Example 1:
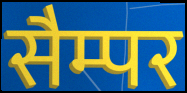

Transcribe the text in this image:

सैम्पर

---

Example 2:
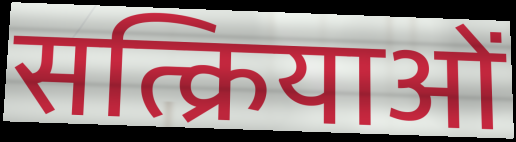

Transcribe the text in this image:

सत्क्रियाओं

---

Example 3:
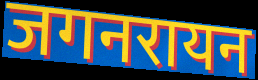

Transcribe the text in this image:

जगनरायन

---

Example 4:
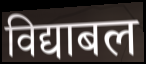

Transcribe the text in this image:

विद्याबल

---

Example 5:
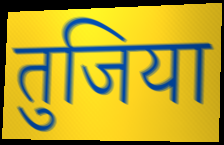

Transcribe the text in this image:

तुजिया